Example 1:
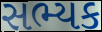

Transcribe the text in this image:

સભ્યક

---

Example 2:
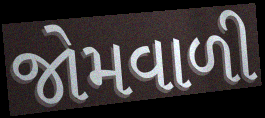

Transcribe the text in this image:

જોમવાળી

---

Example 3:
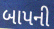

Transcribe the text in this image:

બાપની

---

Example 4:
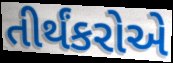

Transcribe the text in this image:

તીર્થંકરોએ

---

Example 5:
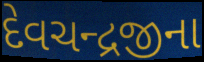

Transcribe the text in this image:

દેવચન્દ્રજીના